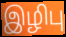
இழிபு